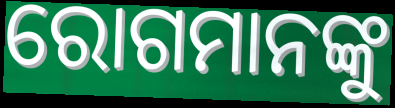
ରୋଗମାନଙ୍କୁ